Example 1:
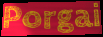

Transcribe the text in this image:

Porgai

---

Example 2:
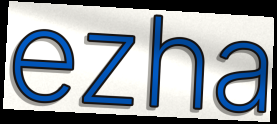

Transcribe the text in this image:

ezha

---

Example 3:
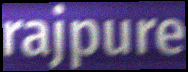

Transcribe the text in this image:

rajpure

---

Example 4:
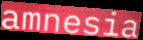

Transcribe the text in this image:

amnesia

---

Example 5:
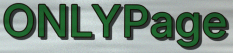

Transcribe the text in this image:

ONLYPage